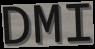
DMI